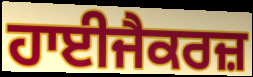
ਹਾਈਜੈਕਰਜ਼